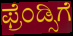
ಫ್ರೆಂಡ್ಸಿಗೆ